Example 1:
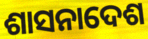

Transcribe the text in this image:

ଶାସନାଦେଶ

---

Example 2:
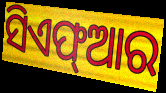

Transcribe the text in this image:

ସିଏଫ୍ଆର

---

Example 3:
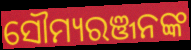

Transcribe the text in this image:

ସୌମ୍ୟରଞ୍ଜନଙ୍କ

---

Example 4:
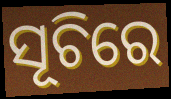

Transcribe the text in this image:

ସୂଚିରେ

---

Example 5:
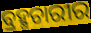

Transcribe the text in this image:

ବ୍ରହ୍ମଚାରୀର